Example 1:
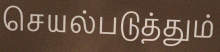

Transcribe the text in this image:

செயல்படுத்தும்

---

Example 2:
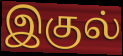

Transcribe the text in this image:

இகுல்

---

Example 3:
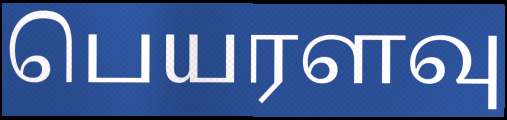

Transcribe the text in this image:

பெயரளவு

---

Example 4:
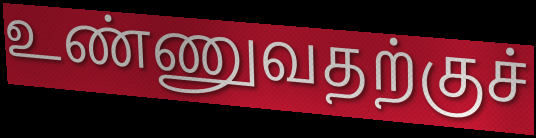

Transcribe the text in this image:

உண்ணுவதற்குச்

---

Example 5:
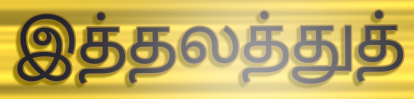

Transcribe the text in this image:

இத்தலத்துத்